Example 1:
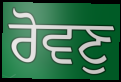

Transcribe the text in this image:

ਰੋਵਣੁ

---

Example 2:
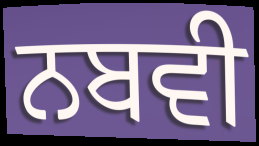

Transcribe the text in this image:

ਨਬਵੀ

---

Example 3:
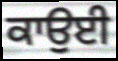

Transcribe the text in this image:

ਕਾਉਈ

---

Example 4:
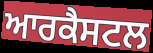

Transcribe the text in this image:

ਆਰਕੈਸਟਲ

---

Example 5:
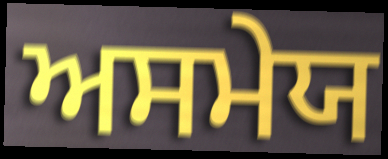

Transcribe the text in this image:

ਅਸਮੇਯ